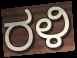
ರಳಿ